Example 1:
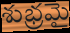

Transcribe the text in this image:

శుభ్రమై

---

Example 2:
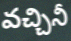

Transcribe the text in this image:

వచ్చినీ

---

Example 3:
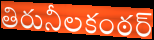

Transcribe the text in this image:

తిరునీలకంఠర్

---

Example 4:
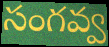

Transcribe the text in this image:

సంగవ్వ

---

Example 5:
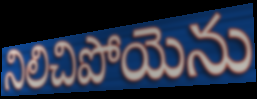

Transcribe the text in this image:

నిలిచిపోయెను